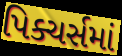
પિક્ચર્સમાં